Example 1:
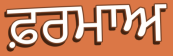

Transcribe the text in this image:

ਫ਼ਰਮਾਅ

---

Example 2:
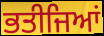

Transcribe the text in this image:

ਭਤੀਜਿਆਂ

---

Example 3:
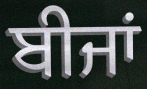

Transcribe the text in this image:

ਬੀਜਾਂ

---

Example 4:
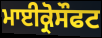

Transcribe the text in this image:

ਮਾਈਕ੍ਰੋਸੌਫਟ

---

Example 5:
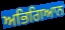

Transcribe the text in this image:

ਅਭਿਗਿਆਨ